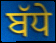
ਬੱਧੇ